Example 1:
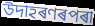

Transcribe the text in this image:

উদাহৰণৰপৰা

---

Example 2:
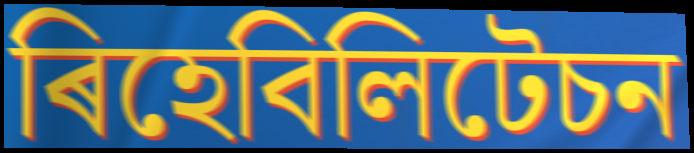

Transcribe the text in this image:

ৰিহেবিলিটেচন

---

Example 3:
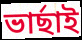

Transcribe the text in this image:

ভাৰ্ছাই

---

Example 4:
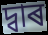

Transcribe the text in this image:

দ্বাৰ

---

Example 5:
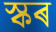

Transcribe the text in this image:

স্কৰ